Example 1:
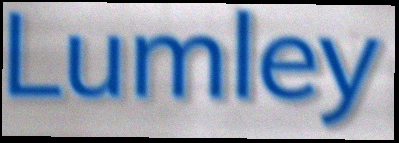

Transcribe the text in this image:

Lumley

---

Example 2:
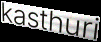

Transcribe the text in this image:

kasthuri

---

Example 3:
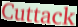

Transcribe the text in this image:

Cuttack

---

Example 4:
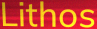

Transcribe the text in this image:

Lithos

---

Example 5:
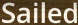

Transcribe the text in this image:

Sailed